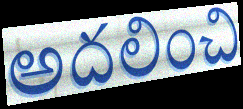
అదలించి